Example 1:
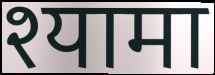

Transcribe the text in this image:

श्यामा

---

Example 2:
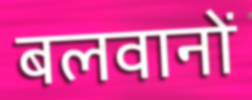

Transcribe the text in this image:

बलवानों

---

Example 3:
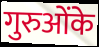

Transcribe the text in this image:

गुरुओंके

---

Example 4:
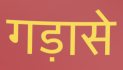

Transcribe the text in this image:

गड़ासे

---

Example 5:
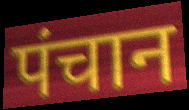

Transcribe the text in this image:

पंचान